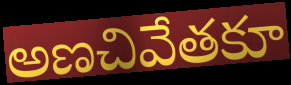
అణచివేతకూ